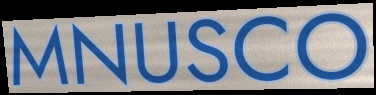
MNUSCO